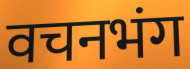
वचनभंग